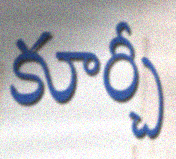
కూర్చీ